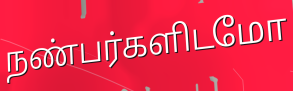
நண்பர்களிடமோ